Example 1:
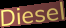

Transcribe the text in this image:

Diesel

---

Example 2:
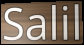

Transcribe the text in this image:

Salil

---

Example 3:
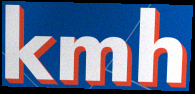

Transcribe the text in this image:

kmh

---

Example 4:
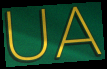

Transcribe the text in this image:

UA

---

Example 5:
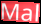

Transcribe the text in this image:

Mal